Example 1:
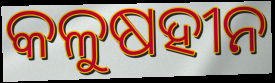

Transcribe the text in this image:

କଳୁଷହୀନ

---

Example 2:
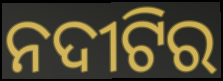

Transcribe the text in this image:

ନଦୀଟିର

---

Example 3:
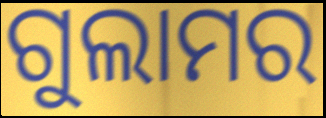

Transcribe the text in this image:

ଗୁଲାମର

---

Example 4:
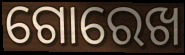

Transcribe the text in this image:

ଗୋରେଖ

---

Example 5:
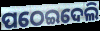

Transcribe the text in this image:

ପଠେଇଦେଲି